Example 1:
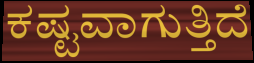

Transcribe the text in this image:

ಕಷ್ಟವಾಗುತ್ತಿದೆ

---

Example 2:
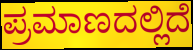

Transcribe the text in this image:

ಪ್ರಮಾಣದಲ್ಲಿದೆ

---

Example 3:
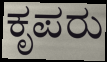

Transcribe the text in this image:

ಕೃಪರು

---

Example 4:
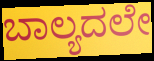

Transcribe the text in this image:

ಬಾಲ್ಯದಲೇ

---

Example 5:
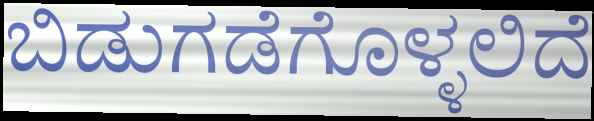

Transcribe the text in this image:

ಬಿಡುಗಡೆಗೊಳ್ಳಲಿದೆ